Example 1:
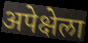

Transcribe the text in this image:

अपेक्षेला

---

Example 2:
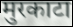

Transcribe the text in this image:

मुरकाटा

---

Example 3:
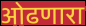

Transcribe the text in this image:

ओढणारा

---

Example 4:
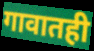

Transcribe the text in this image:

गावातही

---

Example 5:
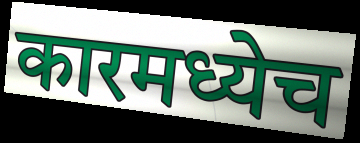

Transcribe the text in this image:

कारमध्येच